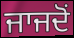
ਜਾਜਦੋਂ